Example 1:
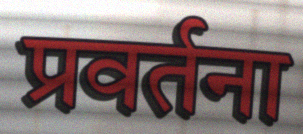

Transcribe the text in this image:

प्रवर्तना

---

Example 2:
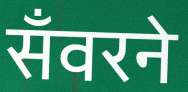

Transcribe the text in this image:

सँवरने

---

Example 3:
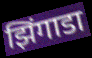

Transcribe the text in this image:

झिंगाडा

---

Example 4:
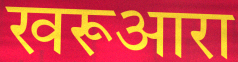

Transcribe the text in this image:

खरूआरा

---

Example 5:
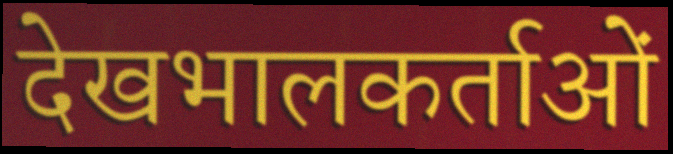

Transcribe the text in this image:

देखभालकर्ताओं